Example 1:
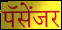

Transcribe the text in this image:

पॅसेंजर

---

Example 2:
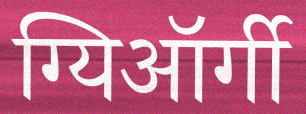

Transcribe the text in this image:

ग्यिऑर्गी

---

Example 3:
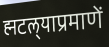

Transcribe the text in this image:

ह्मटल्याप्रमाणें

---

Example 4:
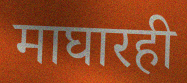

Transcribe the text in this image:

माघारही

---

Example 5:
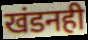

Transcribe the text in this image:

खंडनही